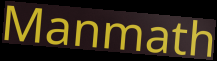
Manmath